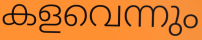
കളവെന്നും